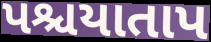
પશ્ચયાતાપ